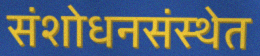
संशोधनसंस्थेत